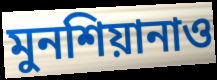
মুনশিয়ানাও